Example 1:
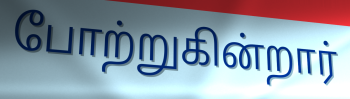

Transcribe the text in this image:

போற்றுகின்றார்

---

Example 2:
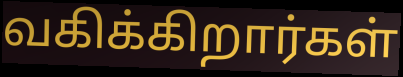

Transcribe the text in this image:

வகிக்கிறார்கள்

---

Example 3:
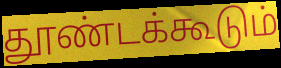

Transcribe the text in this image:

தூண்டக்கூடும்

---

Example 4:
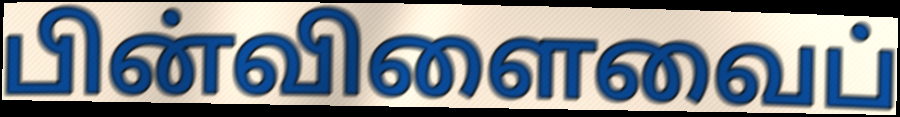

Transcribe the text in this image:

பின்விளைவைப்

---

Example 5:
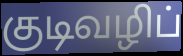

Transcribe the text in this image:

குடிவழிப்